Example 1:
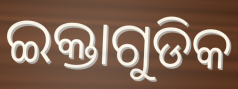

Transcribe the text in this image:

ଇକ୍ତାଗୁଡିକ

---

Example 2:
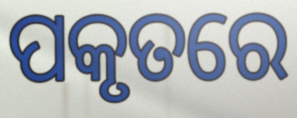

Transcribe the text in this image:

ପକୃତରେ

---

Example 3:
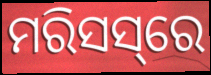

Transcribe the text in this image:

ମରିସସ୍‌ରେ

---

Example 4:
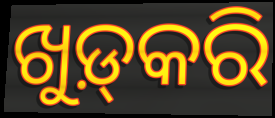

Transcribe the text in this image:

ଖୁଡ଼୍‍କରି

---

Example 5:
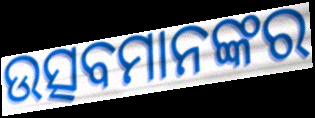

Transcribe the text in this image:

ଉତ୍ସବମାନଙ୍କର